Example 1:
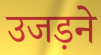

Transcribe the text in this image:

उजड़ने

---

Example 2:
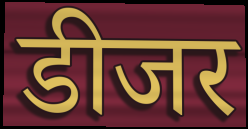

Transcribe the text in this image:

डीजर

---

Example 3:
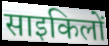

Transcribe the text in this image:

साइकिलों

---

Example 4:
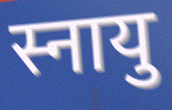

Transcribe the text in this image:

स्नायु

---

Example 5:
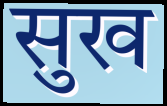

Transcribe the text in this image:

सुख